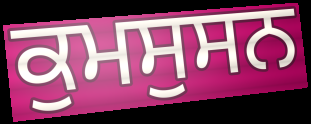
ਕੁਮਸੁਸਨ